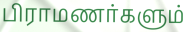
பிராமணர்களும்